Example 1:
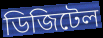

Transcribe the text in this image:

ডিজিটেল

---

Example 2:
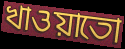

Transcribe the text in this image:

খাওয়াতো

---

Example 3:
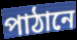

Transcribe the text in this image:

পাঠানে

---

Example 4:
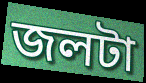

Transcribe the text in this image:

জলটা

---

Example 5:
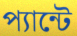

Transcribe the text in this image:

প্যান্টে